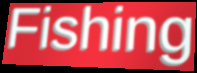
Fishing